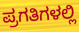
ಪ್ರಗತಿಗಳಲ್ಲಿ